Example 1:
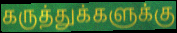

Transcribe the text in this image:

கருத்துக்களுக்கு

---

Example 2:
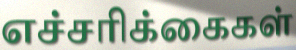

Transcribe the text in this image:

எச்சரிக்கைகள்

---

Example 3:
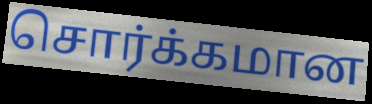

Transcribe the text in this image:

சொர்க்கமான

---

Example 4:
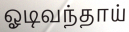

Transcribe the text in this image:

ஓடிவந்தாய்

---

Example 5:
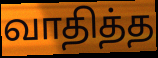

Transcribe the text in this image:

வாதித்த